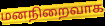
மனநிறைவாக